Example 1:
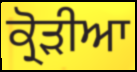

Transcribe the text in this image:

ਕ੍ਰੋੜੀਆ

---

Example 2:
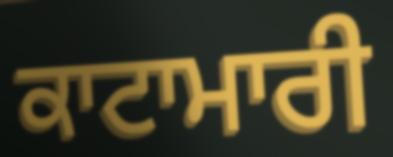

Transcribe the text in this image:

ਕਾਟਾਮਾਰੀ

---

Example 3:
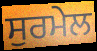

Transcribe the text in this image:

ਸੁਰਮੇਲ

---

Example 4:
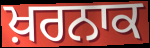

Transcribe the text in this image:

ਖ਼ਰਨਾਕ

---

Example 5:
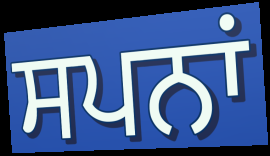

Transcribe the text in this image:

ਸਪਨਾਂ